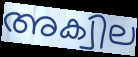
അക്വില